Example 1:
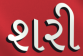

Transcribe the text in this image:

શરી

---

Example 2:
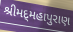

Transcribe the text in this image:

શ્રીમદ્‌મહાપુરાણ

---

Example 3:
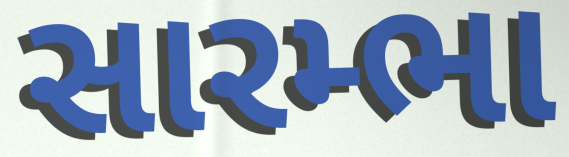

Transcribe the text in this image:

સારમ્ભા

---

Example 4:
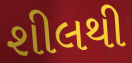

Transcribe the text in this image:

શીલથી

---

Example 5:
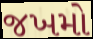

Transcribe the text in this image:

જખમો